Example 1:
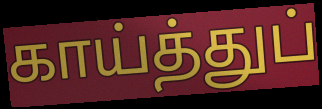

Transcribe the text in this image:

காய்த்துப்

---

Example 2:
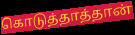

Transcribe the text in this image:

கொடுத்தாத்தான்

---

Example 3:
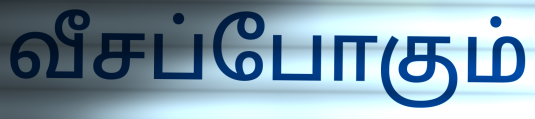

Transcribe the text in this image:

வீசப்போகும்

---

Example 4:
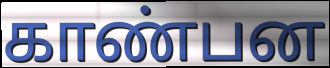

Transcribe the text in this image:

காண்பன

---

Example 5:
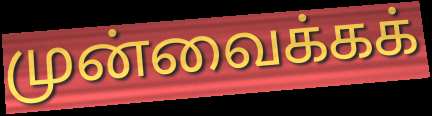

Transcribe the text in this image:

முன்வைக்கக்